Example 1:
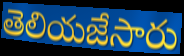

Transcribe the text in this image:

తెలియజేసారు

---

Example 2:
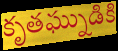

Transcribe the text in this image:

కృతఘ్నుడికి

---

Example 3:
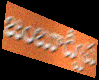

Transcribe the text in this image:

జంబూద్వీప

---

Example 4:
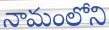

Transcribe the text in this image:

నామంలోని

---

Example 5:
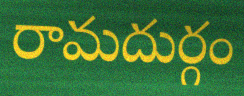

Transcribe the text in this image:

రామదుర్గం